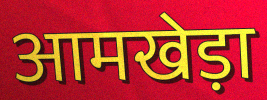
आमखेड़ा